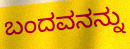
ಬಂದವನನ್ನು